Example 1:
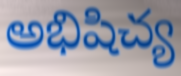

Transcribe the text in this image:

అభిషిచ్య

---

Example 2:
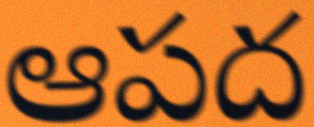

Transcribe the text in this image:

ఆపద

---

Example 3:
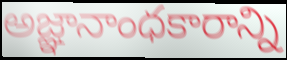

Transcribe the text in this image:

అజ్ఞానాంధకారాన్ని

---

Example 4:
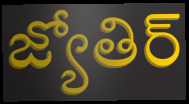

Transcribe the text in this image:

జ్యోతిర్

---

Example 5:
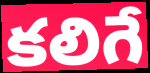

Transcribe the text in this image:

కలిగే